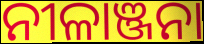
ନୀଳାଞ୍ଜନା